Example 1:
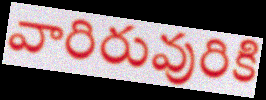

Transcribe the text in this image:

వారిరువురికి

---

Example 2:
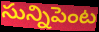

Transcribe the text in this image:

సున్నిపెంట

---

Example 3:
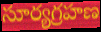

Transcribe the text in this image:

సూర్యగ్రహణ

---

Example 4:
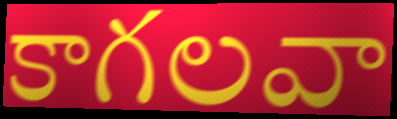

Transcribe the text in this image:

కాగలవా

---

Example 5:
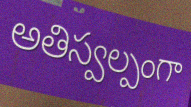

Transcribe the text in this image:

అతిస్వల్పంగా